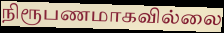
நிரூபணமாகவில்லை